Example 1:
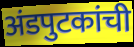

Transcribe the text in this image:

अंडपुटकांची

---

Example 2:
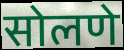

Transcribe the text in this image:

सोलणे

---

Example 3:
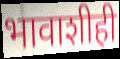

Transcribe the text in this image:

भावाशीही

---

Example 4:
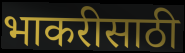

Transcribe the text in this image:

भाकरीसाठी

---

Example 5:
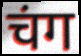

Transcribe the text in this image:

चंग